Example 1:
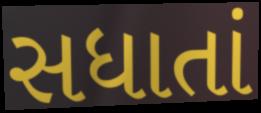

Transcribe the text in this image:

સધાતાં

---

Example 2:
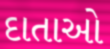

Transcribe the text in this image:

દાતાઓ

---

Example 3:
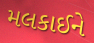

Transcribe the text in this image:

મલકાઈને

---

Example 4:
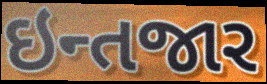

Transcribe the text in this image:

ઇન્તજાર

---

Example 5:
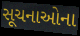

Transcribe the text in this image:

સૂચનાઓના